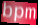
bpm